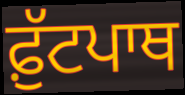
ਫ਼ੁੱਟਪਾਥ